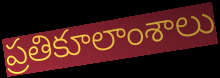
ప్రతికూలాంశాలు